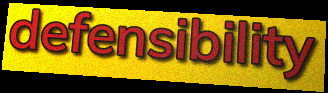
defensibility